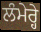
ਲੰਮੇਰ੍ਹੇ